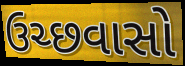
ઉચ્છવાસો